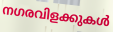
നഗരവിളക്കുകൾ